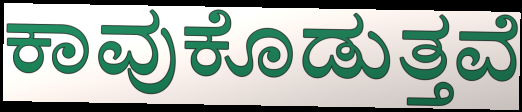
ಕಾವುಕೊಡುತ್ತವೆ